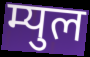
म्युल